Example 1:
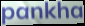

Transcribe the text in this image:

pankha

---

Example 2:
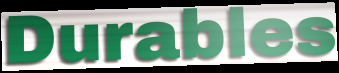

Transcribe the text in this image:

Durables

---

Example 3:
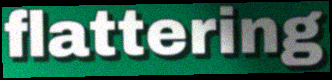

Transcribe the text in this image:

flattering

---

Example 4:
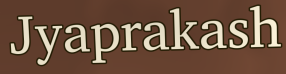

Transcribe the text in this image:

Jyaprakash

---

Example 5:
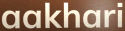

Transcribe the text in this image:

aakhari